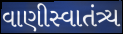
વાણીસ્વાતંત્ર્ય